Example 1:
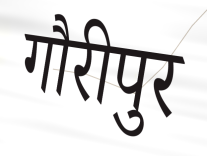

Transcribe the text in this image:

गौरीपुर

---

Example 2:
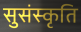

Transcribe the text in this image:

सुसंस्कृति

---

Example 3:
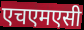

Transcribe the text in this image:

एचएमएसी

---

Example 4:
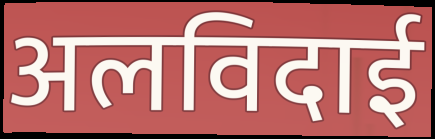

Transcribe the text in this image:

अलविदाई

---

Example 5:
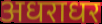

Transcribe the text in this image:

अधराधर